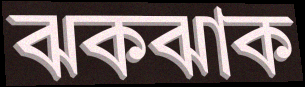
ঝকঝাক